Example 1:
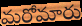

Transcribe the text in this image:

మరోమారు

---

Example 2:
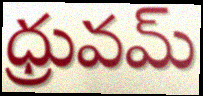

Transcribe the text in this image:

ధ్రువమ్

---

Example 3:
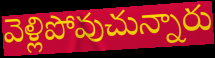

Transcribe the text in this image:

వెళ్లిపోవుచున్నారు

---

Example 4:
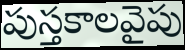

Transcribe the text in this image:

పుస్తకాలవైపు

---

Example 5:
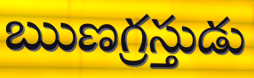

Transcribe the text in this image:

ఋణగ్రస్తుడు